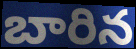
బారిన